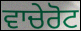
ਵਾਚੇਰੋਟ